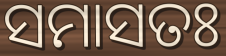
ସମାସତଃ